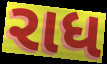
રાધ